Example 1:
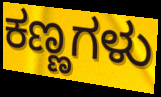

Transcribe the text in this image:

ಕಣ್ಣಗಳು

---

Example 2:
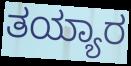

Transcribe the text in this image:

ತಯ್ಯಾರ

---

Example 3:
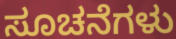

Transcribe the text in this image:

ಸೂಚನೆಗಳು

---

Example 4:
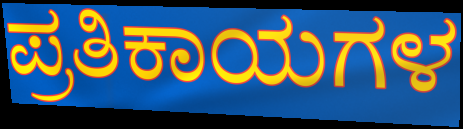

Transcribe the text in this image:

ಪ್ರತಿಕಾಯಗಳ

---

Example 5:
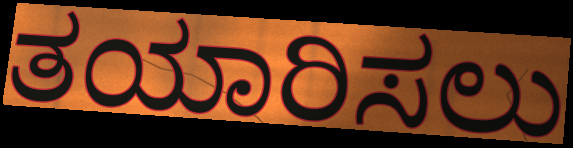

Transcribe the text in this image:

ತಯಾರಿಸಲು